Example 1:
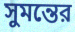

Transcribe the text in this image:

সুমন্তের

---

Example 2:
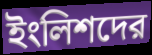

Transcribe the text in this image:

ইংলিশদের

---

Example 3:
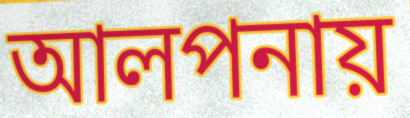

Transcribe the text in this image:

আলপনায়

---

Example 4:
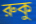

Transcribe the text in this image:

রুকু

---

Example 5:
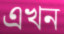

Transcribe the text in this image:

এখন